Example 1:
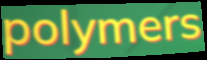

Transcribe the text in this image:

polymers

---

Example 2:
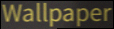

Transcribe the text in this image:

Wallpaper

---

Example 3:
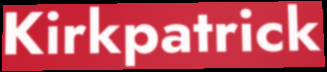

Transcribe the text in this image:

Kirkpatrick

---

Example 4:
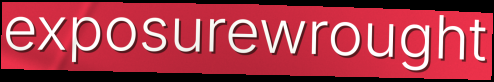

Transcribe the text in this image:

exposurewrought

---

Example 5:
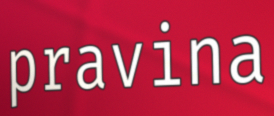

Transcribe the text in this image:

pravina